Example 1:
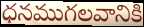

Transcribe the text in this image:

ధనముగలవానికి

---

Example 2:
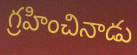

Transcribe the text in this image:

గ్రహించినాడు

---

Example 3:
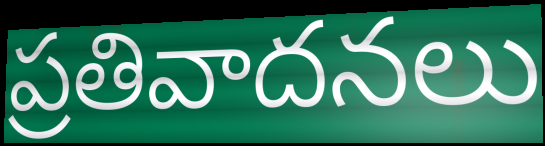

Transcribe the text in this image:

ప్రతివాదనలు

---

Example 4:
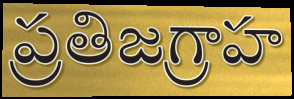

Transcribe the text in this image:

ప్రతిజగ్రాహ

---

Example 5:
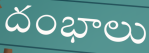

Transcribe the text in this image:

దంభాలు